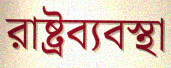
রাষ্ট্রব্যবস্থা